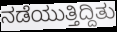
ನಡೆಯುತ್ತಿದ್ದಿತು